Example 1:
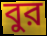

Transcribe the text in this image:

বুর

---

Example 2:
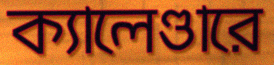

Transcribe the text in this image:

ক্যালেণ্ডারে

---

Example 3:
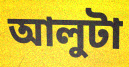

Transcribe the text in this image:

আলুটা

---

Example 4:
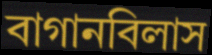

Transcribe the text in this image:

বাগানবিলাস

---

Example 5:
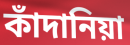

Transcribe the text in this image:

কাঁদানিয়া